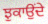
ਝੁਕਾਉਂਦੇ